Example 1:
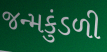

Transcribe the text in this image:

જન્મકુંડળી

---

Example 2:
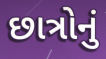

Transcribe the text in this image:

છાત્રોનું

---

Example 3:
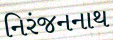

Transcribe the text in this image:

નિરંજનનાથ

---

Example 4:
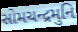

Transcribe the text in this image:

સોમચન્દ્રમુનિ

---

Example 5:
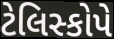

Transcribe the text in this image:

ટેલિસ્કોપે